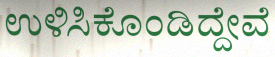
ಉಳಿಸಿಕೊಂಡಿದ್ದೇವೆ